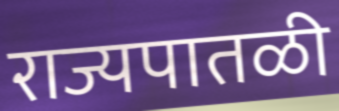
राज्यपातळी